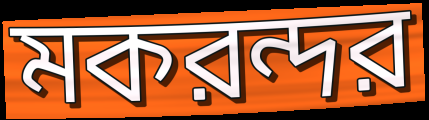
মকরন্দর